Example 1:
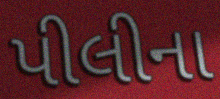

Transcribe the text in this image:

પીલીના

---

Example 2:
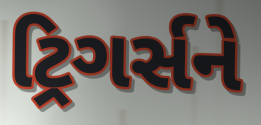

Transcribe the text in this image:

ટ્રિગર્સને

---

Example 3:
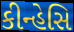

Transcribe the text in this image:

કીન્હેસિ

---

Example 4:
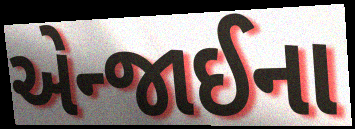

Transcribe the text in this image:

એન્જાઈના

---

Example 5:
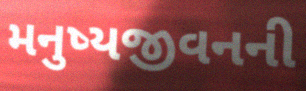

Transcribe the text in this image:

મનુષ્યજીવનની